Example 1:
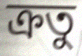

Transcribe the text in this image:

ক্রতু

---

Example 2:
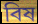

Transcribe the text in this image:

বিষ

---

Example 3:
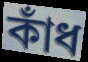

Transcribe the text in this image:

কাঁধ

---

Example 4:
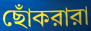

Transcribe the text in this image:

ছোঁকরারা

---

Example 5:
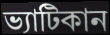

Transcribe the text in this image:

ভ্যাটিকান